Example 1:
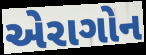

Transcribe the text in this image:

એરાગોન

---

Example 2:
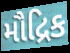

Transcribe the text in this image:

મૌદ્રિક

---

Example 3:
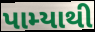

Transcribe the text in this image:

પામ્યાથી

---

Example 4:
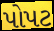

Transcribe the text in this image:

પોપટ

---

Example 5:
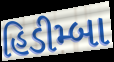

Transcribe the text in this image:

હિડીમ્બા